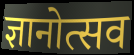
ज्ञानोत्सव